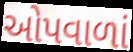
ઓપવાળાં